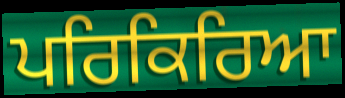
ਪਰਿਕਿਰਿਆ